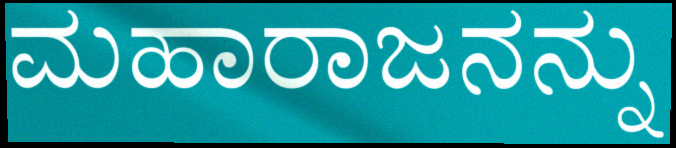
ಮಹಾರಾಜನನ್ನು